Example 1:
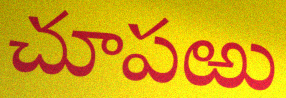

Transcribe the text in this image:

చూపఱు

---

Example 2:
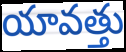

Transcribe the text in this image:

యావత్తు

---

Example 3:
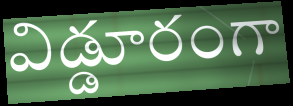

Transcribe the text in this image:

విడ్డూరంగా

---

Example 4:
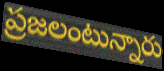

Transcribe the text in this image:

ప్రజలంటున్నారు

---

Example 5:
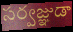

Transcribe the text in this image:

సర్వజ్ఞుడా